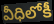
వీధిలోకీ